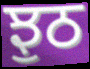
ਝੁਠ